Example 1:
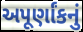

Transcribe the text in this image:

અપૂર્ણાંકનું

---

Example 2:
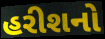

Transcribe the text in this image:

હરીશનો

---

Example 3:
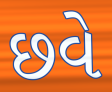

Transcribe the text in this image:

છવે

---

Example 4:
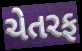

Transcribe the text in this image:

ચેતરફ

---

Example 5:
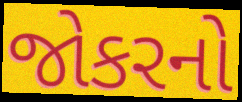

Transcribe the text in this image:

જોકરનો